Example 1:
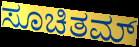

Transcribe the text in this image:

ಸೂಚಿತಮ್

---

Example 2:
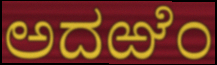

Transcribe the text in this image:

ಅದಱೆಂ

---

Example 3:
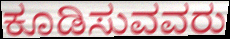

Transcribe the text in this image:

ಕೂಡಿಸುವವರು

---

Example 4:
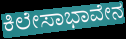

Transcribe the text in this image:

ಕಿಲೇಸಾಭಾವೇನ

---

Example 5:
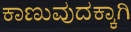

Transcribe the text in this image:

ಕಾಣುವುದಕ್ಕಾಗಿ